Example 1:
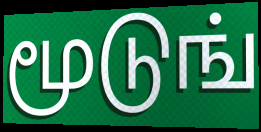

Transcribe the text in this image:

மூடுங்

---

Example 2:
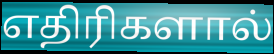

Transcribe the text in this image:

எதிரிகளால்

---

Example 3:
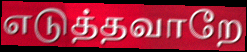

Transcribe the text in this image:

எடுத்தவாறே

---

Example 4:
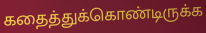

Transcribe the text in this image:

கதைத்துக்கொண்டிருக்க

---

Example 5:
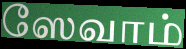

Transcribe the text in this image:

ஸேவாம்